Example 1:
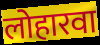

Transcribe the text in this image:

लोहारवा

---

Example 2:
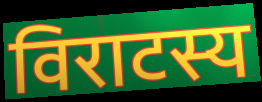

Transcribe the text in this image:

विराटस्य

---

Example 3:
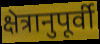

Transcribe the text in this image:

क्षेत्रानुपूर्वी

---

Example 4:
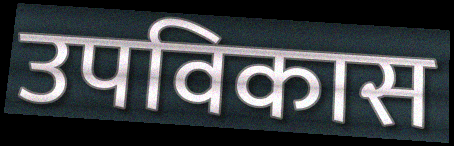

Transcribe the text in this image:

उपविकास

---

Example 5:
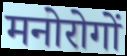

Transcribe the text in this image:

मनोरोगों